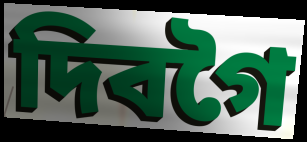
দিবগৈ